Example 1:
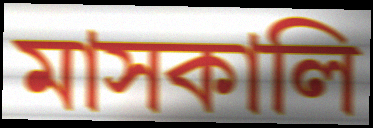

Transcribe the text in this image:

মাসকালি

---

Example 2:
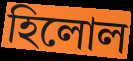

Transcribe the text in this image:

হিলোল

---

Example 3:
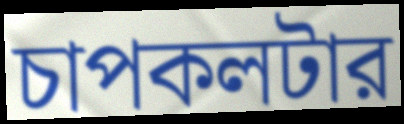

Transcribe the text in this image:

চাপকলটার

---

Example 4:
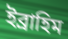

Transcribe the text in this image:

ইব্রাহিম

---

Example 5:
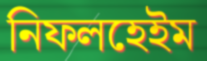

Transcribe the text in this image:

নিফলহেইম